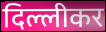
दिल्लीकर